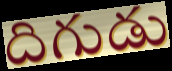
దిగుడు